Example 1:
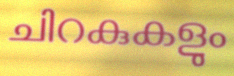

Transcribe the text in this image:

ചിറകുകളും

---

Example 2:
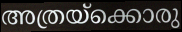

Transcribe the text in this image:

അത്രയ്ക്കൊരു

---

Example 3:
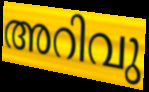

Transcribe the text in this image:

അറിവു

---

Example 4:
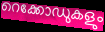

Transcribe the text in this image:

റെക്കോഡുകളും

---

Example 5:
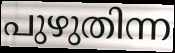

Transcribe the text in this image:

പുഴുതിന്ന